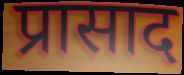
प्रासाद